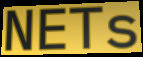
NETs